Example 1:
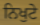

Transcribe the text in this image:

ਨਿਖੁਟੇ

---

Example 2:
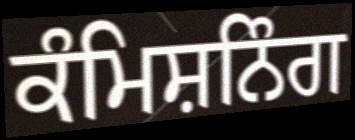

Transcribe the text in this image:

ਕੰਮਿਸ਼ਨਿੰਗ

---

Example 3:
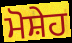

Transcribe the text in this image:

ਮੋਸ਼ੇਹ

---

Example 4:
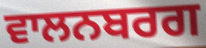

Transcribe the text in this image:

ਵਾਲਨਬਰਗ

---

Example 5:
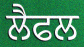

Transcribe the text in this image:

ਲੈਫਲ